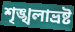
শৃঙ্খলাভ্রষ্ট